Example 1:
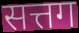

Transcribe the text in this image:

सत्तग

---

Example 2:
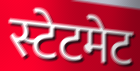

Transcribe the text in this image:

स्टेटमेट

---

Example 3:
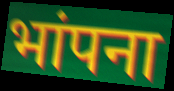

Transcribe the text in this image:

भांपना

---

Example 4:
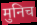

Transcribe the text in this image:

मुनिच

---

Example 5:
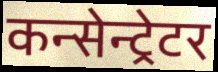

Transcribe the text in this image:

कन्सेन्ट्रेटर